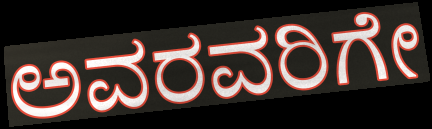
ಅವರವರಿಗೇ